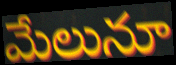
మేలునూ